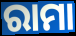
ରାମା